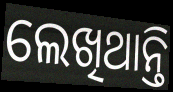
ଲେଖିଥାନ୍ତି